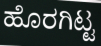
ಹೊರಗಿಟ್ಟ